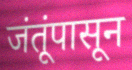
जंतूंपासून